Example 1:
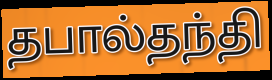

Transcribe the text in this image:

தபால்தந்தி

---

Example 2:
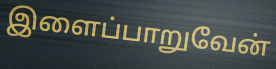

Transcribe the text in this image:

இளைப்பாறுவேன்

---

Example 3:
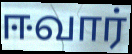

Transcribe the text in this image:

ஈவார்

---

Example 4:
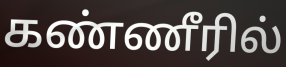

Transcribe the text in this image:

கண்ணீரில்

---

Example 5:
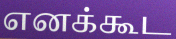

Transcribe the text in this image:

எனக்கூட